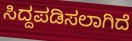
ಸಿದ್ದಪಡಿಸಲಾಗಿದೆ